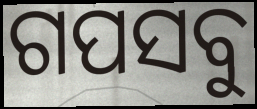
ଗପସବୁ